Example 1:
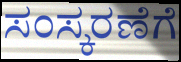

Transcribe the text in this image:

ಸಂಸ್ಕರಣೆಗೆ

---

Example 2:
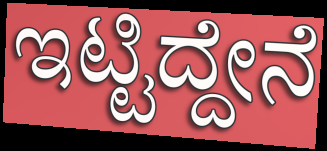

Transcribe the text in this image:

ಇಟ್ಟಿದ್ದೇನೆ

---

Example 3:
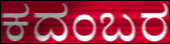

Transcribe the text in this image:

ಕದಂಬರ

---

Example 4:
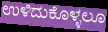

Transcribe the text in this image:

ಉಳಿದುಕೊಳ್ಳಲೂ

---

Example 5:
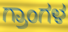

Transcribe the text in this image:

ಗ್ರಾಂಗಳ